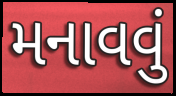
મનાવવું